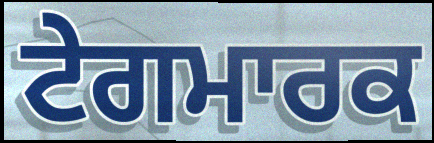
ਟੇਗਮਾਰਕ